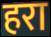
हरा